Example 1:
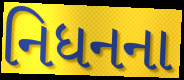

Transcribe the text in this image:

નિધનના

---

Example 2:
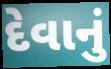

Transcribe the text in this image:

દેવાનું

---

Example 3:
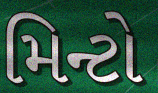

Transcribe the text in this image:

મિન્ટો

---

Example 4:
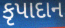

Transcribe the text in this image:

કૃપાદાન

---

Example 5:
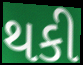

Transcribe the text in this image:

થકી